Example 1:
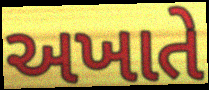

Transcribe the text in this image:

અખાતે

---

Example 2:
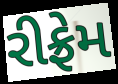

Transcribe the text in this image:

રીફ્રેમ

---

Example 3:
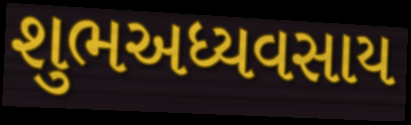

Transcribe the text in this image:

શુભઅધ્યવસાય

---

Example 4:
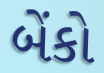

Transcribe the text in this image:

બેંકો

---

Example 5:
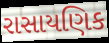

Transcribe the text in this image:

રાસાયણિક